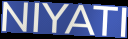
NIYATI